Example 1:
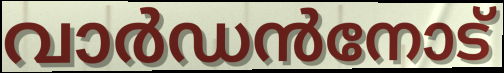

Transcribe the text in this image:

വാർഡൻനോട്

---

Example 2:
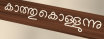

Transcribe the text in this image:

കാത്തുകൊള്ളുന്നു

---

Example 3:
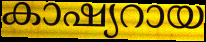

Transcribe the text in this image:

കാഷ്യറായ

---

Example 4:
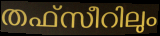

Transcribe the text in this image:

തഫ്സീറിലും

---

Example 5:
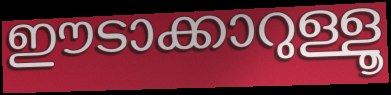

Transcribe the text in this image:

ഈടാക്കാറുള്ളൂ